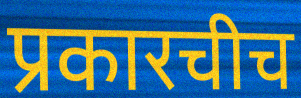
प्रकारचीच